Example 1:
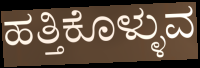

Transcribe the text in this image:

ಹತ್ತಿಕೊಳ್ಳುವ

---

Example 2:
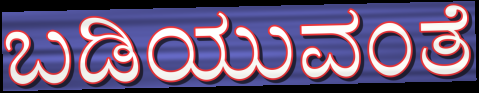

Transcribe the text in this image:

ಬಡಿಯುವಂತೆ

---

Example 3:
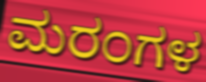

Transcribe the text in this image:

ಮರಂಗಳ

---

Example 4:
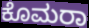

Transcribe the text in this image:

ಕೊಮರಾ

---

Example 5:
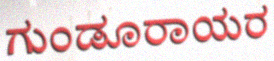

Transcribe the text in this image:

ಗುಂಡೂರಾಯರ